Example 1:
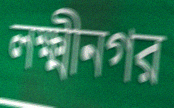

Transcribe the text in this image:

লক্ষ্মীনগর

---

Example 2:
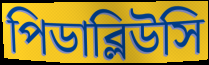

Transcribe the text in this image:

পিডাব্লিউসি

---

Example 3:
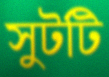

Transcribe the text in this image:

সুটটি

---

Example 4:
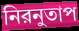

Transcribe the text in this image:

নিরনুতাপ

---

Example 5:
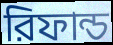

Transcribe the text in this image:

রিফান্ড